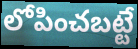
లోపించబట్టే